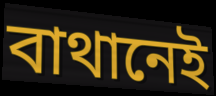
বাথানেই